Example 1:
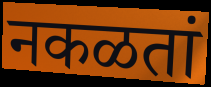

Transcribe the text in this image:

नकळतां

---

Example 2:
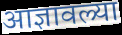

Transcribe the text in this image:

आज्ञावल्या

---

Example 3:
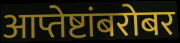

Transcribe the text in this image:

आप्तेष्टांबरोबर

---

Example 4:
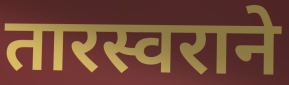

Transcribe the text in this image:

तारस्वराने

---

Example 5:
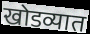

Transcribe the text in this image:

खोडव्यात